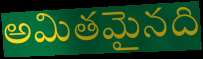
అమితమైనది